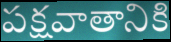
పక్షవాతానికి